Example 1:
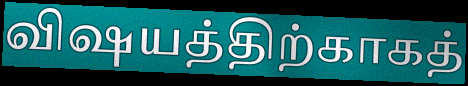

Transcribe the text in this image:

விஷயத்திற்காகத்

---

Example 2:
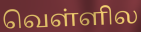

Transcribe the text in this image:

வெள்ளில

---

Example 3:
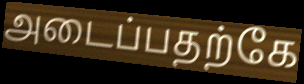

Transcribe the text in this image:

அடைப்பதற்கே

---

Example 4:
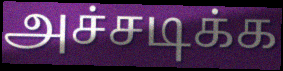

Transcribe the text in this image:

அச்சடிக்க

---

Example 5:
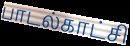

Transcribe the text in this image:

பாடல்காட்சி